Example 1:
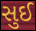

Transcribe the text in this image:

સુઈ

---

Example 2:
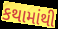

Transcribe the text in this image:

કથામાંથી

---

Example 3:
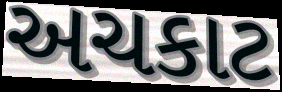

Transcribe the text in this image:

અચકાટ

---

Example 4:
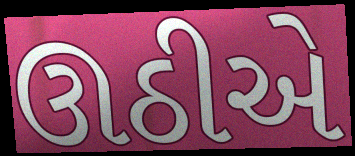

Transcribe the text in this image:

ઊઠીએ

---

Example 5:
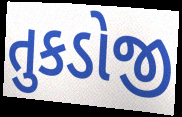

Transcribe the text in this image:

તુકડોજી